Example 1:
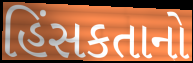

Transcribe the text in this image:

હિંસકતાનો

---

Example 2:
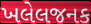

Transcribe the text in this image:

ખલેલજનક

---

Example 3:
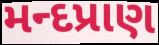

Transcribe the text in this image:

મન્દપ્રાણ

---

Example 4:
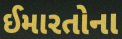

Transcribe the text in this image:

ઈમારતોના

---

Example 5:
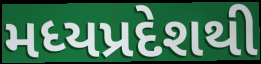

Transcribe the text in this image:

મધ્યપ્રદેશથી